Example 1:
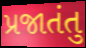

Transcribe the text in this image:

પ્રજાતંતુ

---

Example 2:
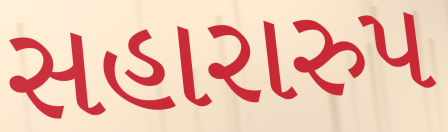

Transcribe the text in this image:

સહારારુપ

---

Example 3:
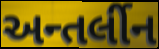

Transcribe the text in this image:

અન્તર્લીન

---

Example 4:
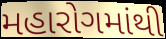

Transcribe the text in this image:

મહારોગમાંથી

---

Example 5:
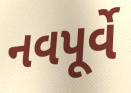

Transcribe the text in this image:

નવપૂર્વે